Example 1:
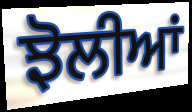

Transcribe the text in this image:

ਝੋਲੀਆਂ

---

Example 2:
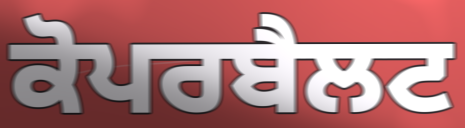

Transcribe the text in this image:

ਕੋਪਰਬੈਲਟ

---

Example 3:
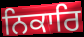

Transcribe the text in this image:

ਨਿਕਾਰਿ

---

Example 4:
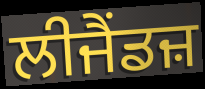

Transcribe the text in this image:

ਲੀਜੈਂਡਜ਼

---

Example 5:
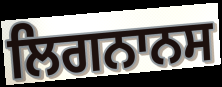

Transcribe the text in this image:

ਲਿਗਨਾਨਸ